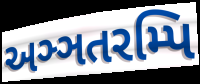
અઞ્ઞતરમ્પિ